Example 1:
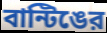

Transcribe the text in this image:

বান্টিঙের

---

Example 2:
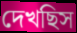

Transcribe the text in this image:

দেখছিস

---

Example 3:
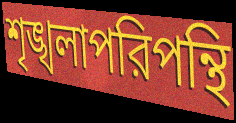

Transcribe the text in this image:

শৃঙ্খলাপরিপন্থি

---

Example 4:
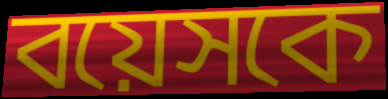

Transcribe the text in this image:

বয়েসকে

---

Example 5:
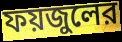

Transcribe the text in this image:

ফয়জুলের